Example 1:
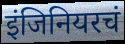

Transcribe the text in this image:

इंजिनियरचं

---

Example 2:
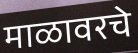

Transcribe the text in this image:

माळावरचे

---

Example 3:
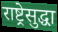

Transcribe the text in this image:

राष्ट्रेसुद्धा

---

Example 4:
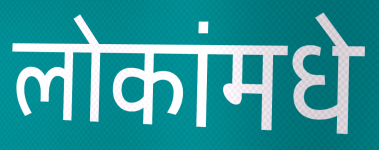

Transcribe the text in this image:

लोकांमधे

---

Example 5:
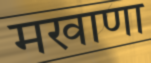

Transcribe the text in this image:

मखाणा